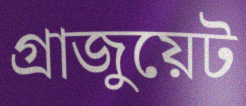
গ্রাজুয়েট